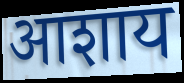
आशाय